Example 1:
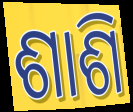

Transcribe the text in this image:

ଶାଶି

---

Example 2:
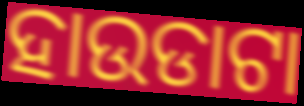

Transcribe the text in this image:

ହାଉଡାଟା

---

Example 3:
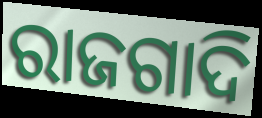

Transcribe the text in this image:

ରାଜଗାଦି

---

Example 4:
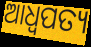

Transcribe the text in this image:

ଆଧ୍ଵପତ୍ୟ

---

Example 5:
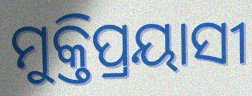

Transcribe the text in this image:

ମୁକ୍ତିପ୍ରୟାସୀ